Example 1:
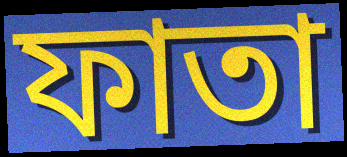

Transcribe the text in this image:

ফাতা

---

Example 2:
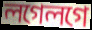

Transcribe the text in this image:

লগেলগে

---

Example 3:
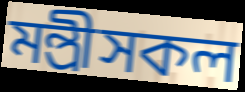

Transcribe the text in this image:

মন্ত্ৰীসকল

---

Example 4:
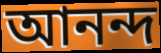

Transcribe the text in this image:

আনন্দ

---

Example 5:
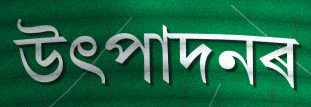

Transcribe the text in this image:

উৎপাদনৰ